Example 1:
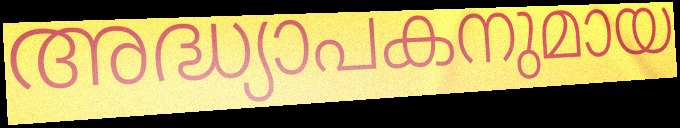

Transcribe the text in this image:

അദ്ധ്യാപകനുമായ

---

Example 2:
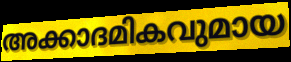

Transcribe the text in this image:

അക്കാദമികവുമായ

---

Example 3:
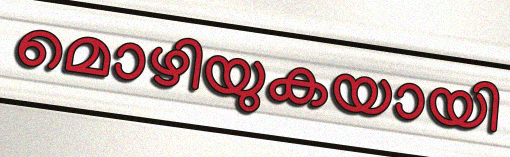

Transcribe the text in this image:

മൊഴിയുകയായി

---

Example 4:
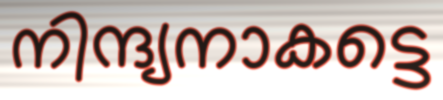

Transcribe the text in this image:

നിന്ദ്യനാകട്ടെ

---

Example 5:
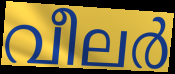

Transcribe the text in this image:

വീലർ